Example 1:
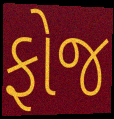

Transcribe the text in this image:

ફોજ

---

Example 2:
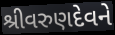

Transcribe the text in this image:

શ્રીવરુણદેવને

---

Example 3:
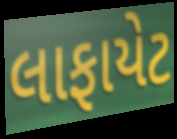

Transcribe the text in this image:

લાફાયેટ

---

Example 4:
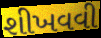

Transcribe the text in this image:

શીખવવી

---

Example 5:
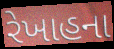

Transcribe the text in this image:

રેખાહના